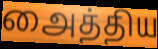
அைத்திய